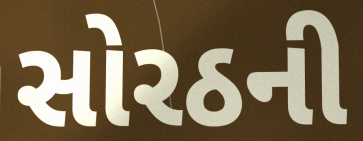
સોરઠની